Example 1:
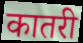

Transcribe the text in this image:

कातरी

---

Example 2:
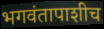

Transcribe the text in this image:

भगवंतापाशीच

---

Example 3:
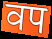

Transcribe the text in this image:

वप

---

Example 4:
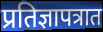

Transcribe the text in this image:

प्रतिज्ञापत्रात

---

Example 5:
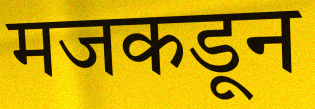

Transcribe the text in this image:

मजकडून